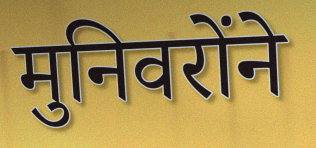
मुनिवरोंने